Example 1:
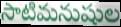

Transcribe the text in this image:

సాటిమనుషుల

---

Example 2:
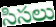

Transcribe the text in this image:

సిసలు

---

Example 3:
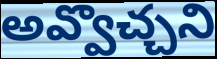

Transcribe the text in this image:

అవ్వొచ్చని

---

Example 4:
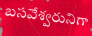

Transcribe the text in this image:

బసవేశ్వరునిగా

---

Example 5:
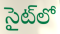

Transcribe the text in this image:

సైట్‌లో